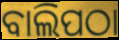
ବାଲିପଠା